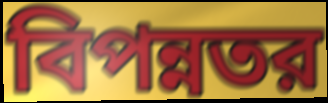
বিপন্নতর